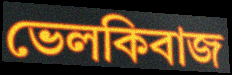
ভেলকিবাজ